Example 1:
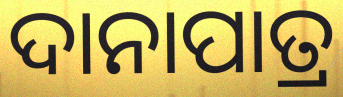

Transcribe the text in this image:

ଦାନାପାତ୍ର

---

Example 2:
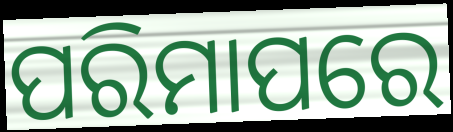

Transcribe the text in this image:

ପରିମାପରେ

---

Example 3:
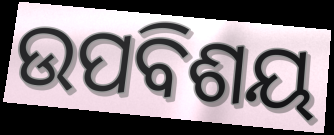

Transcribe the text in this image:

ଉପବିଶୟ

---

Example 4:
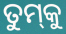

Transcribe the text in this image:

ତୁମ୍‌କୁ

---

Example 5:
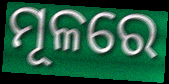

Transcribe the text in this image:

ମୂଳରେ